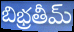
బిభ్రతీమ్